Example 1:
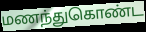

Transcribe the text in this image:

மணந்துகொண்ட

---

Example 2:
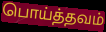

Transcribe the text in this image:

பொய்த்தவம்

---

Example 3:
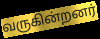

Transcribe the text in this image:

வருகின்றனர்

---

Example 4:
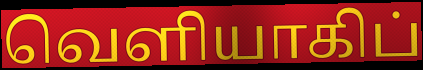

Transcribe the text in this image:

வெளியாகிப்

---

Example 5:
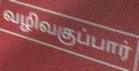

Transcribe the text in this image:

வழிவகுப்பார்